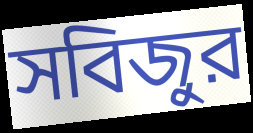
সবিজুর